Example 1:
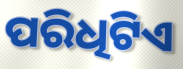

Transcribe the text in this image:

ପରିଧିଟିଏ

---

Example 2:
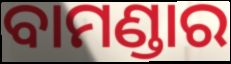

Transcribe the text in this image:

ବାମଣ୍ଡାର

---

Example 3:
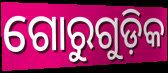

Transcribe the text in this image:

ଗୋରୁଗୁଡ଼ିକ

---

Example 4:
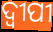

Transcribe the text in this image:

ଦ୍ୱୀପୀ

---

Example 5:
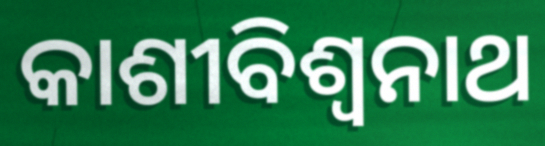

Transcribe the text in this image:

କାଶୀବିଶ୍ୱନାଥ